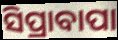
ସିପ୍ରାବାପା